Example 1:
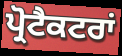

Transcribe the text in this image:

ਪ੍ਰੋਟੈਕਟਰਾਂ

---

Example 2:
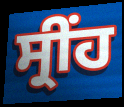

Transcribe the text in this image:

ਸ੍ਰੀਂਹ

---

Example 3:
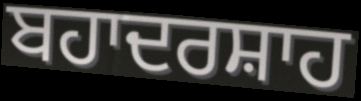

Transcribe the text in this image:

ਬਹਾਦਰਸ਼ਾਹ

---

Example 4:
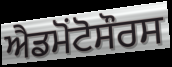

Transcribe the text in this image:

ਐਡਮੋਂਟੋਸੌਰਸ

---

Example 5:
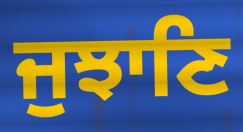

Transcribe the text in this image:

ਜੁਝਾਣਿ